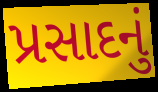
પ્રસાદનું